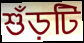
শুঁড়টি